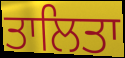
ਤਾਲਿਤਾ